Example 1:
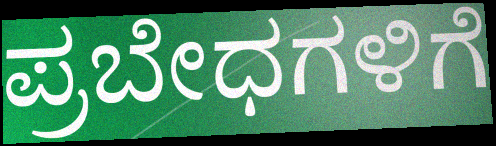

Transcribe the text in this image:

ಪ್ರಬೇಧಗಳಿಗೆ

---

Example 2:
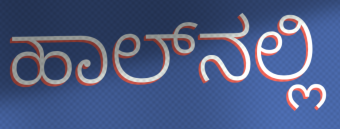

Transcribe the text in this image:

ಹಾಲ್‌ನಲ್ಲಿ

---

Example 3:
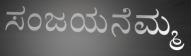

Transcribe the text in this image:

ಸಂಜಯನೆಮ್ಮ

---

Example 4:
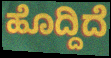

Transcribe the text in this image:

ಹೊದ್ದಿದೆ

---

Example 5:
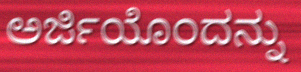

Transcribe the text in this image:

ಅರ್ಜಿಯೊಂದನ್ನು